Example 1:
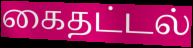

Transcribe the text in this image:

கைதட்டல்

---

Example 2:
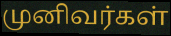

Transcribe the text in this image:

முனிவர்கள்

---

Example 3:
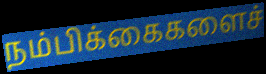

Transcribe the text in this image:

நம்பிக்கைகளைச்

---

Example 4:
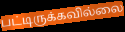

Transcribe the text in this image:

பட்டிருக்கவில்லை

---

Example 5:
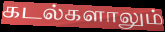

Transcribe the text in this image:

கடல்களாலும்